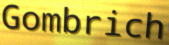
Gombrich